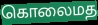
கொலைமத